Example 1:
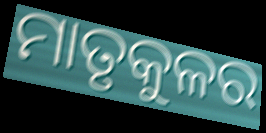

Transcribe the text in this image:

ମାତୃକୁଳର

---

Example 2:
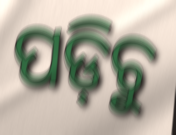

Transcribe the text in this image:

ପଡ଼ିଚୁ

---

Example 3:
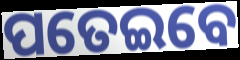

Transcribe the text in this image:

ପତେଇବେ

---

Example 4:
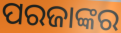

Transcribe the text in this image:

ପରଜାଙ୍କର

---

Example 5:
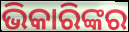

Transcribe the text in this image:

ଭିକାରିଙ୍କର